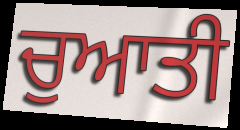
ਚੁਆਤੀ